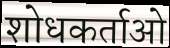
शोधकर्ताओ